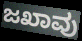
ಜಖಾವು